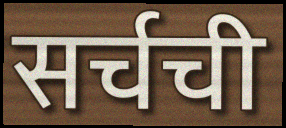
सर्चची